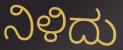
ನಿಳಿದು